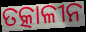
ତତ୍କାଳୀନ